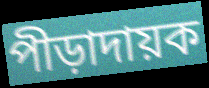
পীড়াদায়ক